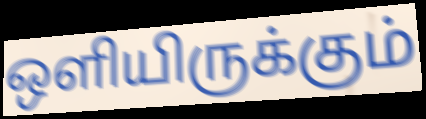
ஒளியிருக்கும்